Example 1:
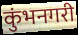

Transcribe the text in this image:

कुंभनगरी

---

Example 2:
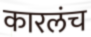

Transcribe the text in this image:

कारलंच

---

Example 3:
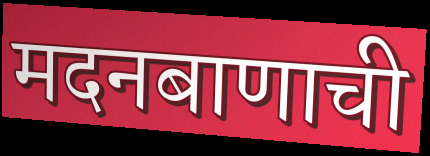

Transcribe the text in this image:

मदनबाणाची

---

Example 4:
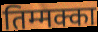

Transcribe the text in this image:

तिम्मक्का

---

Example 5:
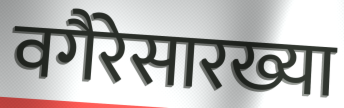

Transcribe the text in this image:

वगैरेसारख्या